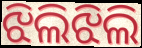
ଝିଲିଝିଲି